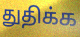
துதிக்க